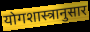
योगशास्त्रानुसार